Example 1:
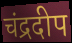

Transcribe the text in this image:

चंद्रदीप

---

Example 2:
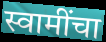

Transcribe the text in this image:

स्वामींचा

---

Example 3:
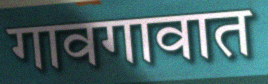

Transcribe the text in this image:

गावगावात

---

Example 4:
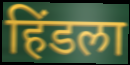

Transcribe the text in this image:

हिंडला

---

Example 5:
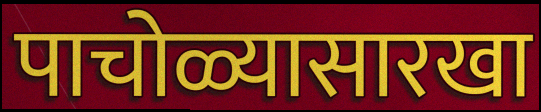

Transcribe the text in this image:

पाचोळ्यासारखा